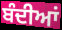
ਬੰਦੀਆਂ